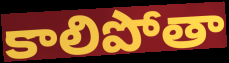
కాలిపోతా